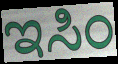
ಇಸಿಂ